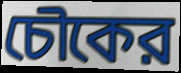
চৌকের